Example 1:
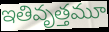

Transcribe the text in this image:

ఇతివృత్తమూ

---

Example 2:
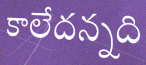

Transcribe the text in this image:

కాలేదన్నది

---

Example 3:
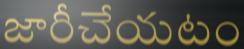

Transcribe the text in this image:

జారీచేయటం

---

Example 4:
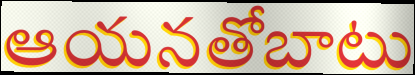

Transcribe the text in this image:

ఆయనతోబాటు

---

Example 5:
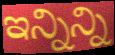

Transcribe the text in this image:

ఇన్నిన్ని